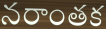
నరాంతక